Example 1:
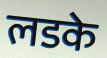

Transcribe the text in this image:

लडके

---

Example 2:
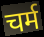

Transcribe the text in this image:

चर्म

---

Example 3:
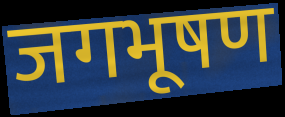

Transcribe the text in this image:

जगभूषण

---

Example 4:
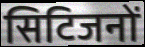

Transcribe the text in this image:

सिटिजनों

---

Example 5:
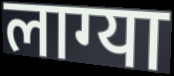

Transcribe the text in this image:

लाग्या